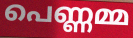
പെണ്ണമ്മ